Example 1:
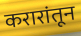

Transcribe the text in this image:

करारांतून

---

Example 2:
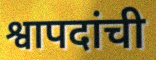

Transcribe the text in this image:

श्वापदांची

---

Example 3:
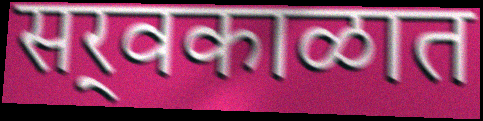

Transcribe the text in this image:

सर्वकाळात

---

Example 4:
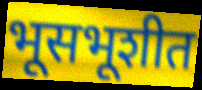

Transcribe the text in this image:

भूसभूशीत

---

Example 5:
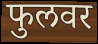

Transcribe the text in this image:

फुलवर